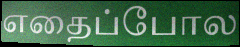
எதைப்போல